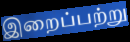
இறைப்பற்று